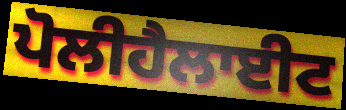
ਪੋਲੀਹੈਲਾਈਟ